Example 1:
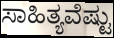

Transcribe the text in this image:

ಸಾಹಿತ್ಯವೆಷ್ಟು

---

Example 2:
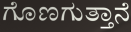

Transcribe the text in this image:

ಗೊಣಗುತ್ತಾನೆ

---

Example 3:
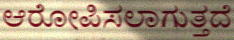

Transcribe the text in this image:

ಆರೋಪಿಸಲಾಗುತ್ತದೆ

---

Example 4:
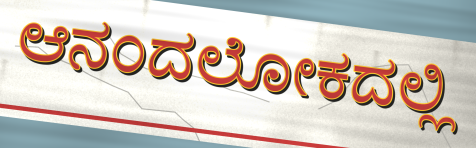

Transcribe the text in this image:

ಆನಂದಲೋಕದಲ್ಲಿ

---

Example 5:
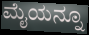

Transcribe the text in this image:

ಮೈಯನ್ನೂ